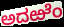
ಅದಱೆಂ